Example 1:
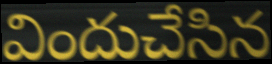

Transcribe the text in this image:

విందుచేసిన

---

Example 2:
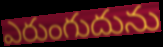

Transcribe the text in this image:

ఎరుంగుదును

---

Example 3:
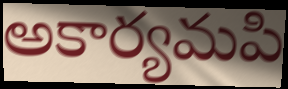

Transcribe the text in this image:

అకార్యమపి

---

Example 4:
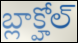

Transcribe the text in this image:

బ్లాక్హోల్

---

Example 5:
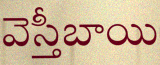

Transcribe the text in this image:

వెస్తీబాయి